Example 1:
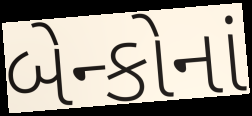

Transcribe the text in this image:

બેન્કોનાં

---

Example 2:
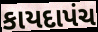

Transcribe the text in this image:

કાયદાપંચ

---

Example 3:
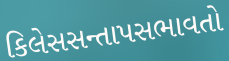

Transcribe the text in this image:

કિલેસસન્તાપસભાવતો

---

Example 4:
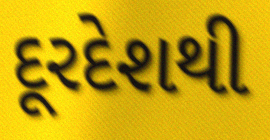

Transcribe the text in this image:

દૂરદેશથી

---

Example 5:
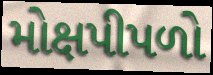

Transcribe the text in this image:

મોક્ષપીપળો